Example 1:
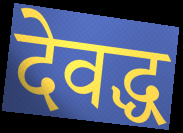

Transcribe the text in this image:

देवद्ध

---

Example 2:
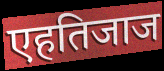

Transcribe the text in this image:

एहतिजाज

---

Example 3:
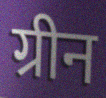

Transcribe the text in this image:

ग्रीन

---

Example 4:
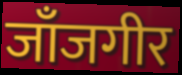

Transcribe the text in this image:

जाँजगीर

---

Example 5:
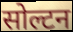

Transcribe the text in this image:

सोल्टन